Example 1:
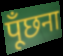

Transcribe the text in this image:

पूँछना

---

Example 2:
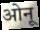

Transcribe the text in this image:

ओनू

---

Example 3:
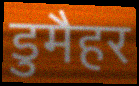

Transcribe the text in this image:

डुमैहर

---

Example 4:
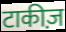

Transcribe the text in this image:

टाकीज़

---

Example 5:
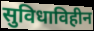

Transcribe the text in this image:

सुविधाविहीन